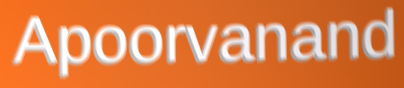
Apoorvanand